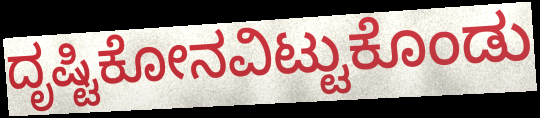
ದೃಷ್ಟಿಕೋನವಿಟ್ಟುಕೊಂಡು